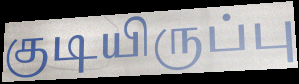
குடியிருப்பு